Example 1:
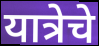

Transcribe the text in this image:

यात्रेचे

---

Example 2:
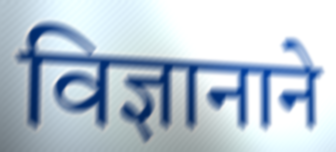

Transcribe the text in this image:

विज्ञानाने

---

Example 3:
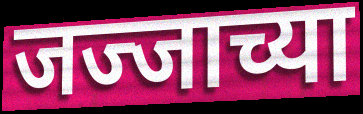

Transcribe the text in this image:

जज्जाच्या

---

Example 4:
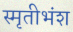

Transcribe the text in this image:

स्मृतीभंश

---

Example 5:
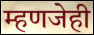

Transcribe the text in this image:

म्हणजेही